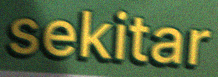
sekitar